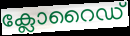
ക്ലോറൈഡ്